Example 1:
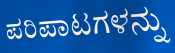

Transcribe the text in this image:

ಪರಿಪಾಟಗಳನ್ನು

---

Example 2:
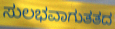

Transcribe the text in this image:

ಸುಲಭವಾಗುತತದ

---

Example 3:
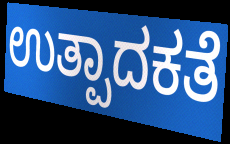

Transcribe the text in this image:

ಉತ್ಪಾದಕತೆ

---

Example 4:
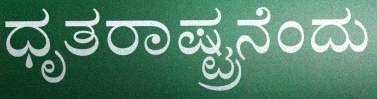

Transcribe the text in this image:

ಧೃತರಾಷ್ಟ್ರನೆಂದು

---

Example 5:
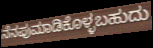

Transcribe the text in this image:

ನೆನಪುಮಾಡಿಕೊಳ್ಳಬಹುದು